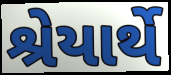
શ્રેયાર્થે